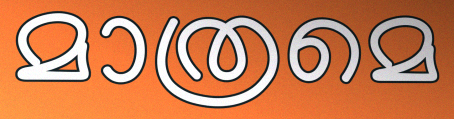
മാത്രമെ